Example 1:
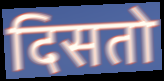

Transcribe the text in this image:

दिसतो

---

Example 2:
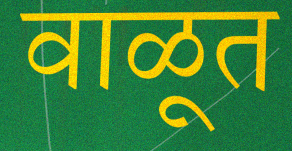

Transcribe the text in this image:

वाळूत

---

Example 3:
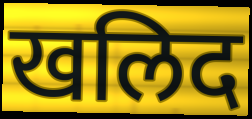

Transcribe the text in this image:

खलिद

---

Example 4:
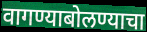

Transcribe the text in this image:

वागण्याबोलण्याचा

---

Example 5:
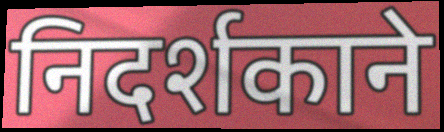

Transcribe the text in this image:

निदर्शकाने